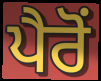
ਪੈਰੋਂ